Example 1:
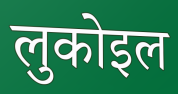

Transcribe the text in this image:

लुकोइल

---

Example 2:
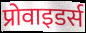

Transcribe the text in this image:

प्रोवाइडर्स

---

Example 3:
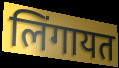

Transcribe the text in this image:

लिंगायत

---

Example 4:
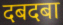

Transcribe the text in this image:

दबदबा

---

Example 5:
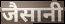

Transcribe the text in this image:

जैसानी